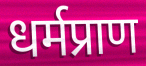
धर्मप्राण